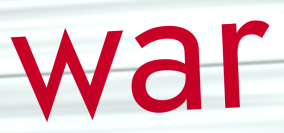
war